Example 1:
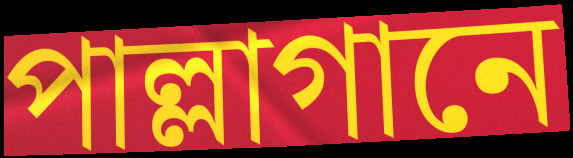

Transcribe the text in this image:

পাল্লাগানে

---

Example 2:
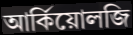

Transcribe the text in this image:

আর্কিয়োলজি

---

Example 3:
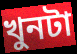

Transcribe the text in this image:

খুনটা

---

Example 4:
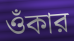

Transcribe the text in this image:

ওঁকার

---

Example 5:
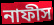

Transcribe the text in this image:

নাফীস